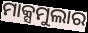
ମାକ୍ସମୁଲାର